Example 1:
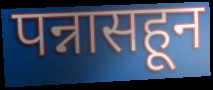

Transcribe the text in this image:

पन्नासहून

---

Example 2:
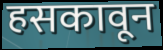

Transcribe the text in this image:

हसकावून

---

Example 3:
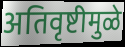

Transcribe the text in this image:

अतिवृष्टीमुळे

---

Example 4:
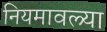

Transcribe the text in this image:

नियमावल्या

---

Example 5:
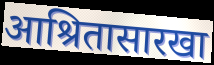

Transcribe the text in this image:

आश्रितासारखा